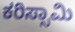
ಕರಿಸ್ಸಾಮಿ